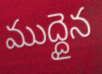
ముద్దైన